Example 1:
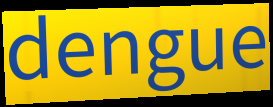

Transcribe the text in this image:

dengue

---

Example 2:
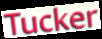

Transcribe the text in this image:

Tucker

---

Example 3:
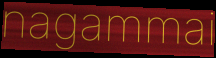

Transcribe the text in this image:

nagammai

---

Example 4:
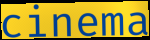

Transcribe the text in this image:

cinema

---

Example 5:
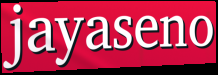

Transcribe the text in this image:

jayaseno